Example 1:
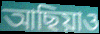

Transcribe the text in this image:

আছিয়াও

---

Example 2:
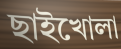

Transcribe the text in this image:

ছাইখোলা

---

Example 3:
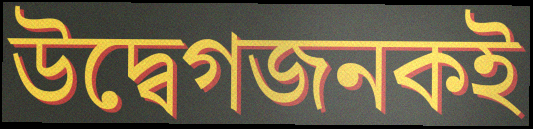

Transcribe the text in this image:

উদ্বেগজনকই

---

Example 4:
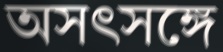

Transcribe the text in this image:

অসৎসঙ্গে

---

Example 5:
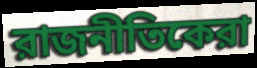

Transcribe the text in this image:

রাজনীতিকেরা